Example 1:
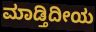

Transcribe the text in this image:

ಮಾಡ್ತಿದೀಯ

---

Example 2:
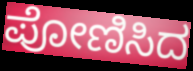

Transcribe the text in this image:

ಪೋಣಿಸಿದ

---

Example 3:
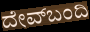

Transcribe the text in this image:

ದೇವ್‌ಬಂದಿ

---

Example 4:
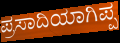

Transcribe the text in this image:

ಪ್ರಸಾದಿಯಾಗಿಪ್ಪ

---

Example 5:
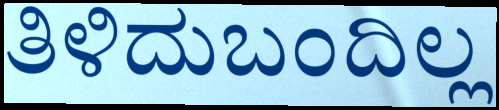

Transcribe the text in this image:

ತಿಳಿದುಬಂದಿಲ್ಲ